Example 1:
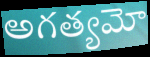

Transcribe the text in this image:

అగత్యమో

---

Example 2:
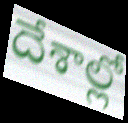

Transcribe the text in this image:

దేశాల్లో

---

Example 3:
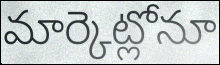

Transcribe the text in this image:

మార్కెట్లోనూ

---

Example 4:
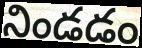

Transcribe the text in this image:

నిండడం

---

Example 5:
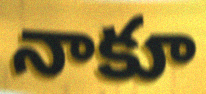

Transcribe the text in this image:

నాకూ